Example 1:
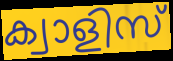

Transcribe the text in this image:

ക്വാളിസ്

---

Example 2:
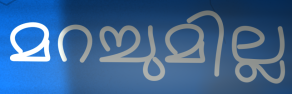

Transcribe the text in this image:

മറച്ചുമില്ല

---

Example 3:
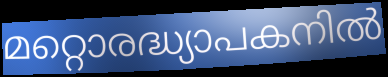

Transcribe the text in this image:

മറ്റൊരദ്ധ്യാപകനിൽ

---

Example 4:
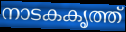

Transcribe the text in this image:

നാടകകൃത്ത്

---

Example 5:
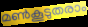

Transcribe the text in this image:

മൺകൂടുതരാം